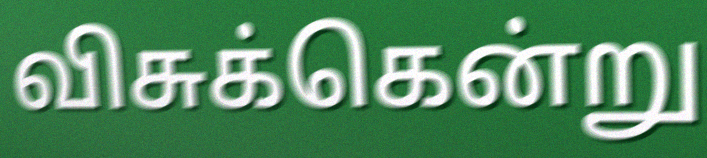
விசுக்கென்று